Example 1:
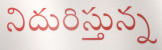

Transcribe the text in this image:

నిదురిస్తున్న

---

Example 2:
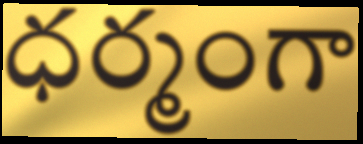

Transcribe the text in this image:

ధర్మంగా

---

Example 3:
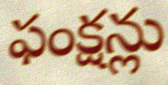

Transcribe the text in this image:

ఫంక్షన్లు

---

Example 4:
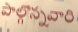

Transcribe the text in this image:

పాల్గొన్నవారి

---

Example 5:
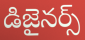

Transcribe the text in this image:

డిజైనర్స్